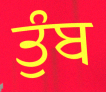
ਤੁੰਬ